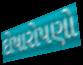
દોષારોપણો